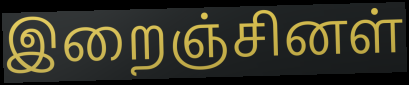
இறைஞ்சினள்